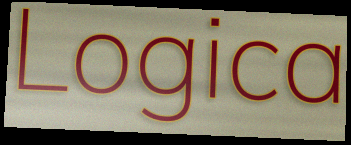
Logica